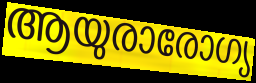
ആയുരാരോഗ്യ